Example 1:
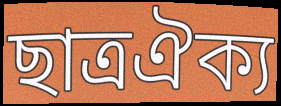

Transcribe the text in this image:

ছাত্রঐক্য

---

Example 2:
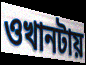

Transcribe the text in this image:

ওখানটায়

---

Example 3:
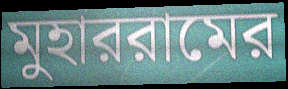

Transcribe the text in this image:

মুহাররামের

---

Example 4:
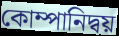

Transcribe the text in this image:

কোম্পানিদ্বয়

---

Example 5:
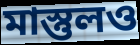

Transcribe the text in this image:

মাস্তুলও